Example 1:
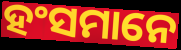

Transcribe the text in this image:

ହଂସମାନେ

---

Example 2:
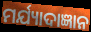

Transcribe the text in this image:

ମର୍ଯ୍ୟାଦାଜ୍ଞାନ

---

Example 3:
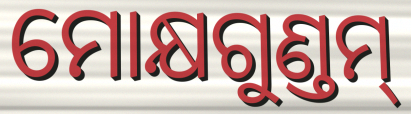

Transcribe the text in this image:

ମୋକ୍ଷଗୁଣ୍ଡମ୍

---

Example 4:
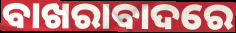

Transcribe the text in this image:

ବାଖରାବାଦରେ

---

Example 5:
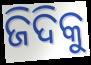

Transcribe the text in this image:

ଜିଦିକୁ